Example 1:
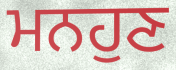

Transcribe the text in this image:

ਮਨਹੁਣ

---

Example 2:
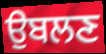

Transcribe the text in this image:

ਉਬਲਣ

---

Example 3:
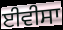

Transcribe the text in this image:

ਈਵੀਸਾ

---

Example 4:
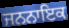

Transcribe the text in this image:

ਜਨਨਾਇਕ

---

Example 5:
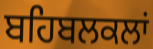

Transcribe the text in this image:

ਬਹਿਬਲਕਲਾਂ